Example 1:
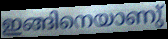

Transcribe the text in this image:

ഇങ്ങിനെയാണു്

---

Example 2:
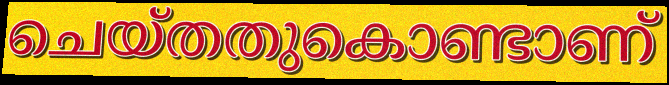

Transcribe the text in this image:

ചെയ്തതുകൊണ്ടാണ്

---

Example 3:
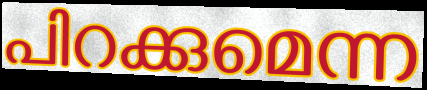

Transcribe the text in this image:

പിറക്കുമെന്ന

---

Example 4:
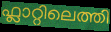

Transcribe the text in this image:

ഫ്ലാറ്റിലെത്തി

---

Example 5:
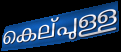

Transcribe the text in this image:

കെല്‌പുള്ള